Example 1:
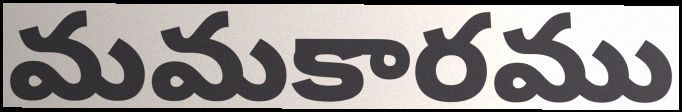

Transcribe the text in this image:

మమకారము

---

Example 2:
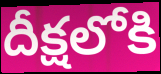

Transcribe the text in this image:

దీక్షలోకి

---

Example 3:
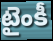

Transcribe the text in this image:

టైంకీ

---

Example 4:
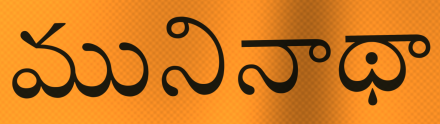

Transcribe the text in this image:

మునినాథా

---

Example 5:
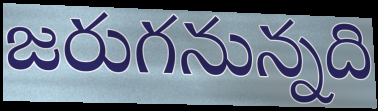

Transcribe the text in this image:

జరుగనున్నది